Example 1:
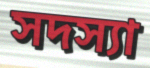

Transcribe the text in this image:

সদস্যা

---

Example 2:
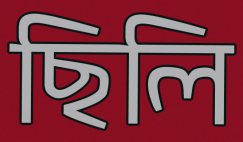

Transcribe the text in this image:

ছিলি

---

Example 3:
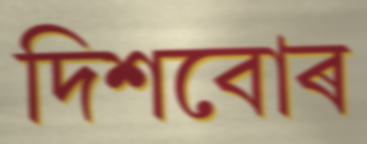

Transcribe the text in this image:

দিশবোৰ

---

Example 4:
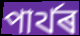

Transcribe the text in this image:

পাৰ্থৰ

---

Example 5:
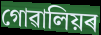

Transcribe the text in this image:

গোৱালিয়ৰ